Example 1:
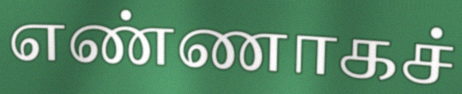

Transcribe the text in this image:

எண்ணாகச்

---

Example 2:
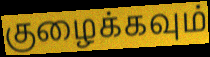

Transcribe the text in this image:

குழைக்கவும்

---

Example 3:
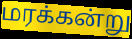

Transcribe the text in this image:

மரக்கன்று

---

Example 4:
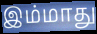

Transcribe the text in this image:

இம்மாது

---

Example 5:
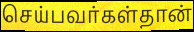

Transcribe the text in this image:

செய்பவர்கள்தான்